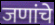
जणांचे